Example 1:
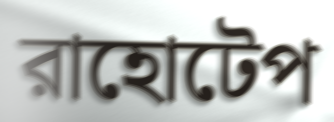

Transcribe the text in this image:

রাহোটেপ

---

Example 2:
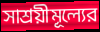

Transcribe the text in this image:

সাশ্রয়ীমূল্যের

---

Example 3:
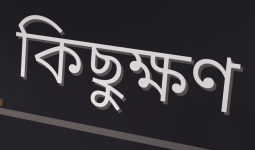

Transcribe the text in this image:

কিছুক্ষণ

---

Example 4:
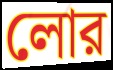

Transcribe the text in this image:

লোর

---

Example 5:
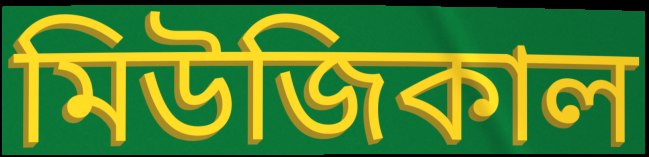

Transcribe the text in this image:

মিউজিকাল